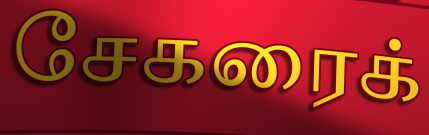
சேகரைக்